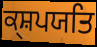
ਕ੍ਸ਼ਪਯਤਿ